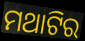
ମଥାଟିର